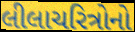
લીલાચરિત્રોનો